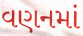
વણનમાં